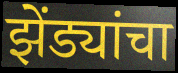
झेंड्यांचा